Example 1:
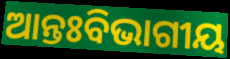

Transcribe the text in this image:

ଆନ୍ତଃବିଭାଗୀୟ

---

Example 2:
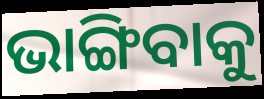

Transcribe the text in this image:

ଭାଙ୍ଗିବାକୁ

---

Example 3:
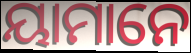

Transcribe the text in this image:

ୟାମାନେ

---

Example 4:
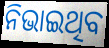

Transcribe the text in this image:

ନିଭାଇଥିବ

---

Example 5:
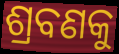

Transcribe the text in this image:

ଶ୍ରବଣକୁ